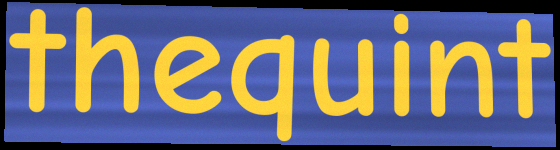
thequint